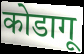
कोडागू